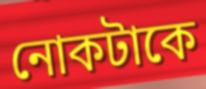
নোকটাকে